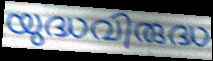
യുദ്ധവിരുദ്ധ